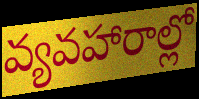
వ్యవహారాల్లో